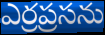
ఎర్రప్రసను